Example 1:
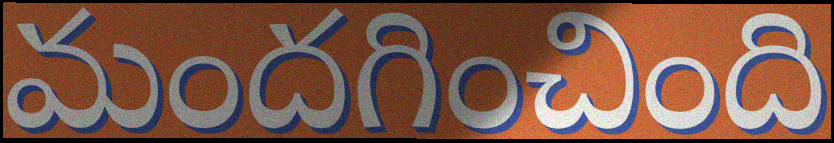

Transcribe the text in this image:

మందగించింది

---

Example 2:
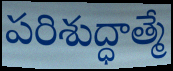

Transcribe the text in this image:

పరిశుద్ధాత్మే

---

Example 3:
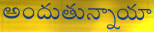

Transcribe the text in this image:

అందుతున్నాయా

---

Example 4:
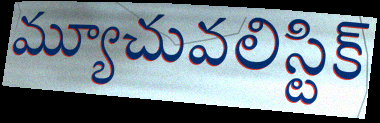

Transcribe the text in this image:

మ్యూచువలిస్టిక్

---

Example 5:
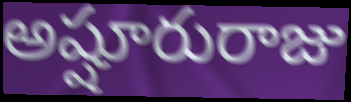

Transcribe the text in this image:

అష్షూరురాజు